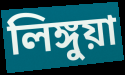
লিঙ্গুয়া